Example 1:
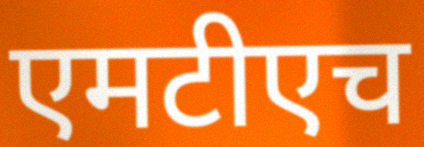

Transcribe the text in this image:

एमटीएच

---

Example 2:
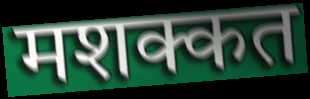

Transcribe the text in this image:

मशक्कत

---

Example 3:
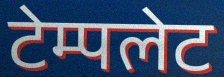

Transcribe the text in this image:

टेम्पलेट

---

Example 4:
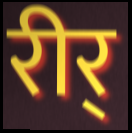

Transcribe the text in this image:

रीर्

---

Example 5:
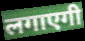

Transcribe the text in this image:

लगाएगी